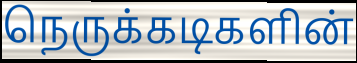
நெருக்கடிகளின்